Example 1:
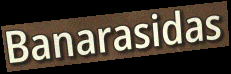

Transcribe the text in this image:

Banarasidas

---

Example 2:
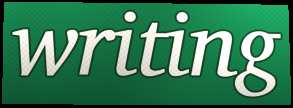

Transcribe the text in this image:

writing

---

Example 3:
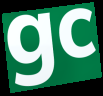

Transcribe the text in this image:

gc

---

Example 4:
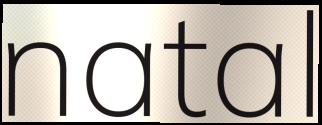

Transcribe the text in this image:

natal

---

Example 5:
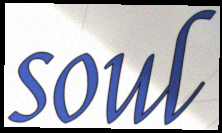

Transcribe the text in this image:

soul